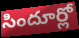
సిందూర్లో